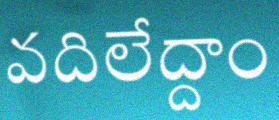
వదిలేద్దాం